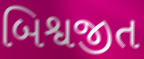
બિશ્વજીત